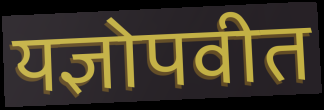
यज्ञोपवीत